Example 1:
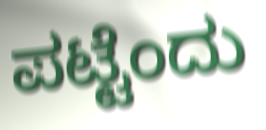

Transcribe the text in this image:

ಪಟ್ಟೆಂದು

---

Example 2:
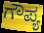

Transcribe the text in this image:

ಗೌಪ್ಯ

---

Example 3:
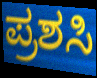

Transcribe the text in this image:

ಪ್ರಶಸಿ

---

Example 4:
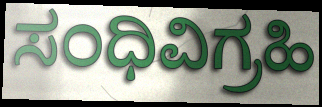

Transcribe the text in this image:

ಸಂಧಿವಿಗ್ರಹಿ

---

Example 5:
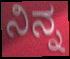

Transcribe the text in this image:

ನಿನ್ನ